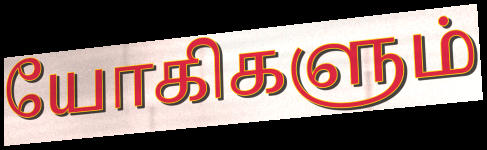
யோகிகளும்